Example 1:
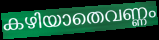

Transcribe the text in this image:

കഴിയാതെവണ്ണം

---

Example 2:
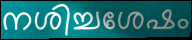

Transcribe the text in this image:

നശിച്ചശേഷം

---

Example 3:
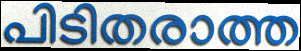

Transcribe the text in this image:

പിടിതരാത്ത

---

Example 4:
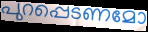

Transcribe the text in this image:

പുറപ്പെടണമോ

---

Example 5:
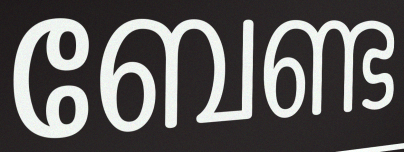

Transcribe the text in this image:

ബേണ്ട